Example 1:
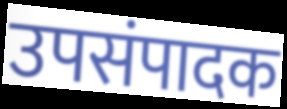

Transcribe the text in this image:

उपसंपादक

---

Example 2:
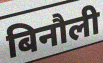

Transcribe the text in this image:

बिनौली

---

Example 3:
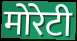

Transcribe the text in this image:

मोरेटी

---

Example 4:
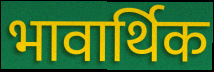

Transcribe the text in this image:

भावार्थिक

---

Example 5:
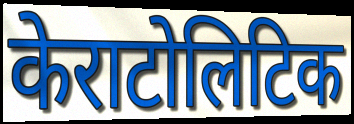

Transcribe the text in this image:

केराटोलिटिक